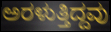
ಅರಳುತ್ತಿದ್ದವು